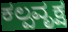
ಕಲ್ಪವೃಕ್ಷ